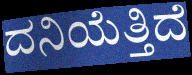
ದನಿಯೆತ್ತಿದೆ